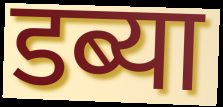
डब्या